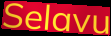
Selavu